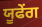
ਯੂਫੇਂਗ